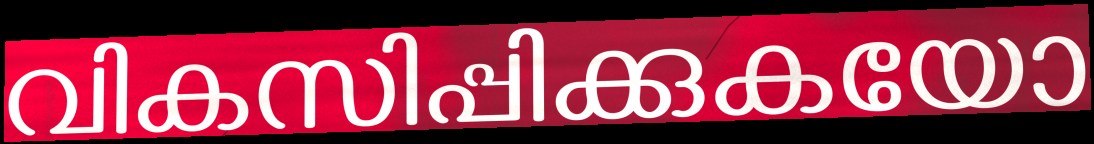
വികസിപ്പിക്കുകയോ